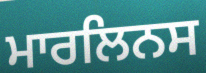
ਮਾਰਲਿਨਸ